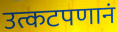
उत्कटपणानं